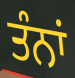
ਤੰਨਾਂ